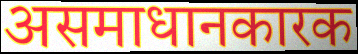
असमाधानकारक